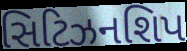
સિટિઝનશિપ